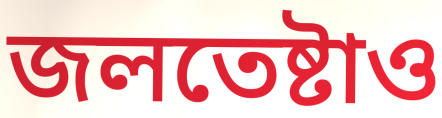
জলতেষ্টাও